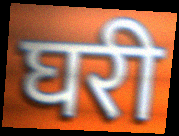
घरी